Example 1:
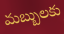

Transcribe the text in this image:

మబ్బులకు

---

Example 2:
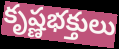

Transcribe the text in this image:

కృష్ణభక్తులు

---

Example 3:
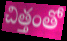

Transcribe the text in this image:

చిత్తంతో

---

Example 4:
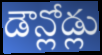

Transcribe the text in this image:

డౌన్లోడ్లు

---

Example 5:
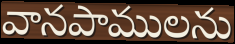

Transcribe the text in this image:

వానపాములను